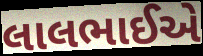
લાલભાઈએ